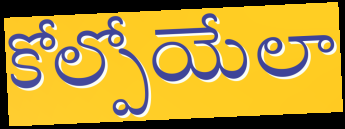
కోల్పోయేలా